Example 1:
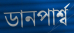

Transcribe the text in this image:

ডানপার্শ্ব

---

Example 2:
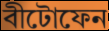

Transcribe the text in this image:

বীটোফেন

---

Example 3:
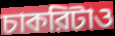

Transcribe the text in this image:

চাকরিটাও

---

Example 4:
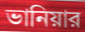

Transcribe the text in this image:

ভানিয়ার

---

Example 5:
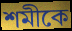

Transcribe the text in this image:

শমীকে